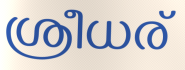
ശ്രീധര്